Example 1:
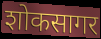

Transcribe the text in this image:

शोकसागर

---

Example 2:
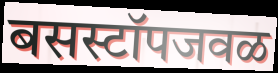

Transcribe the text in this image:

बसस्टॉपजवळ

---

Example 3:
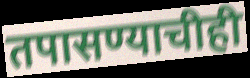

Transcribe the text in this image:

तपासण्याचीही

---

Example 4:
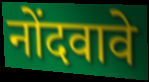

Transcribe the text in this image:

नोंदवावे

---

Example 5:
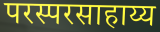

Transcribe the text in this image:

परस्परसाहाय्य